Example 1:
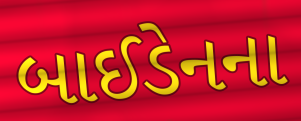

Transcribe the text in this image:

બાઈડેનના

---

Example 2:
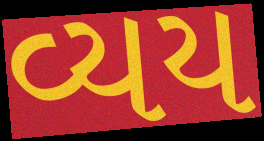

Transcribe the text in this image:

વ્યય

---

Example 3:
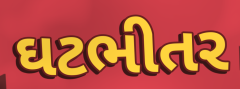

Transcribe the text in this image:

ઘટભીતર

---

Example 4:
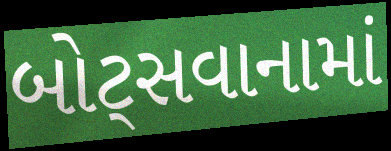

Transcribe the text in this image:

બોટ્સવાનામાં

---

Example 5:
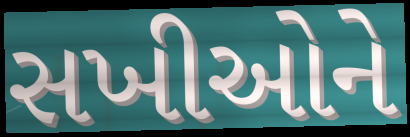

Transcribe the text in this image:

સખીઓને